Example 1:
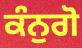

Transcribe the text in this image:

ਕੰਨੁਗੋ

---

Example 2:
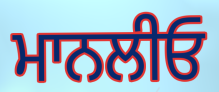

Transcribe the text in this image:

ਮਾਨਲੀਓ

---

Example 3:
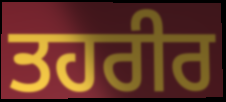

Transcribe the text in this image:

ਤਹਰੀਰ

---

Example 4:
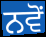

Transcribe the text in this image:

ਨਵੋਂ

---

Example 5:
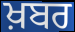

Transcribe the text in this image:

ਖ਼ਬਰ